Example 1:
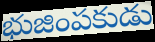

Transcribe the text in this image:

భుజింపకుడు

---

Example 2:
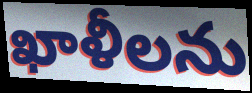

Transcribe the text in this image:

ఖాళీలను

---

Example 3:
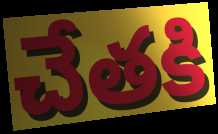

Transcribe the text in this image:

చేతకి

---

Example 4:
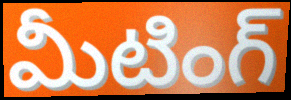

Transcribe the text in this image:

మీటింగ్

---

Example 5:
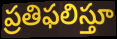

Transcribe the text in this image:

ప్రతిఫలిస్తూ